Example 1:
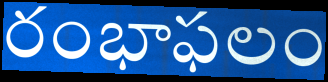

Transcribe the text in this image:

రంభాఫలం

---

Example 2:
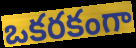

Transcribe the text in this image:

ఒకరకంగా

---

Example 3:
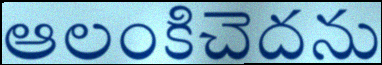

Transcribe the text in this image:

ఆలంకిచెదను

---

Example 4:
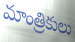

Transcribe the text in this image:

మాంత్రికులు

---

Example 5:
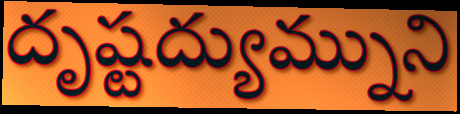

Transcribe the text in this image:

దృష్టద్యుమ్నుని